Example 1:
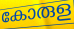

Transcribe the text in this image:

കോരുള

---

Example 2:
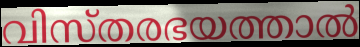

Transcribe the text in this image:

വിസ്തരഭയത്താൽ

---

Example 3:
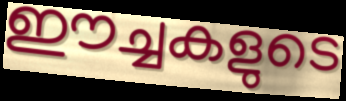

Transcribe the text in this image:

ഈച്ചകളുടെ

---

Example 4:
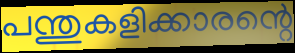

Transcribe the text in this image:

പന്തുകളിക്കാരന്റെ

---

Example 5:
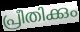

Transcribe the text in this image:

പ്രീതിക്കും